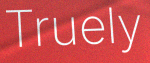
Truely